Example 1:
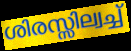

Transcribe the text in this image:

ശിരസ്സില്വച്ച്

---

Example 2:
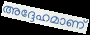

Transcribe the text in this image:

അദ്ദേഹമാണ്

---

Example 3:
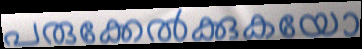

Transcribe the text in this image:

പരുക്കേൽക്കുകയോ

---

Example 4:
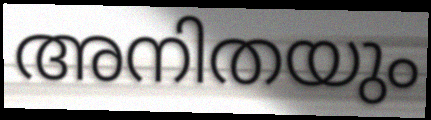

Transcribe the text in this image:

അനിതയും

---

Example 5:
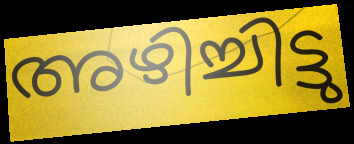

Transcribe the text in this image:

അഴിച്ചിട്ടു